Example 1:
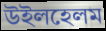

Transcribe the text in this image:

উইলহেলম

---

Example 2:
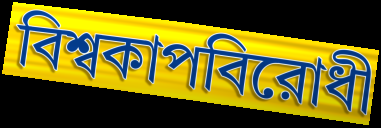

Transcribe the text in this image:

বিশ্বকাপবিরোধী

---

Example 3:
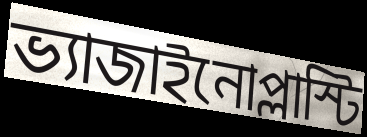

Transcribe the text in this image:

ভ্যাজাইনোপ্লাস্টি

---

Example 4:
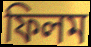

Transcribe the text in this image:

ফিলম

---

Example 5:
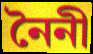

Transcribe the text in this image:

নৈনী